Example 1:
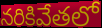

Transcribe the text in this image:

నరికివేతలో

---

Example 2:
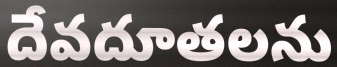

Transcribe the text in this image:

దేవదూతలను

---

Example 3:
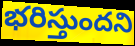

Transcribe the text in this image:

భరిస్తుందని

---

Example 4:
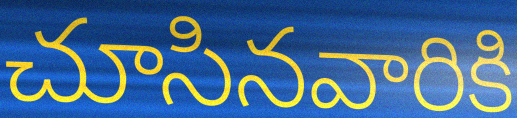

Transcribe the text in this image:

చూసినవారికి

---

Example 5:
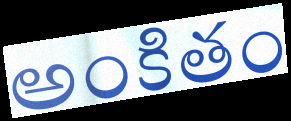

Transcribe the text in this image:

అంకితం